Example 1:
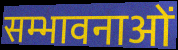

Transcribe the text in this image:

सम्भावनाओं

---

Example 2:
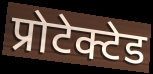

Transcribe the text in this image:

प्रोटेक्टेड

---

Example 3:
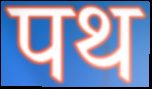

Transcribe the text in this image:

पथ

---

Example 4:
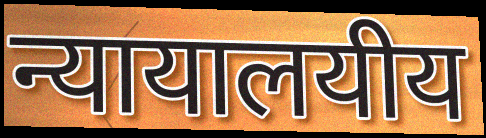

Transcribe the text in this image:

न्यायालयीय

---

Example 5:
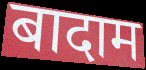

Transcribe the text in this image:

बादाम